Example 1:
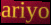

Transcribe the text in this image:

ariyo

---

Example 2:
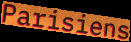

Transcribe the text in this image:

Parisiens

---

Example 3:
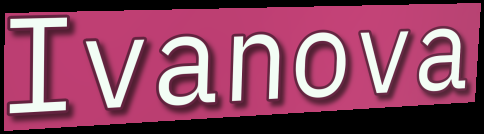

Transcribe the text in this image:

Ivanova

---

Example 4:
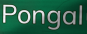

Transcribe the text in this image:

Pongal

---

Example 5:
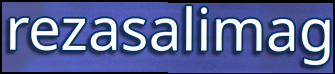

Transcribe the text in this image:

rezasalimag